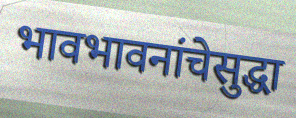
भावभावनांचेसुद्धा